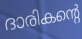
ദാരികന്റെ